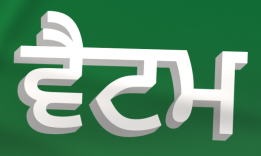
ਵੈਟਮ